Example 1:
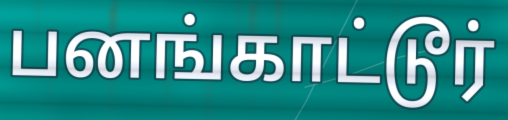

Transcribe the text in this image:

பனங்காட்டூர்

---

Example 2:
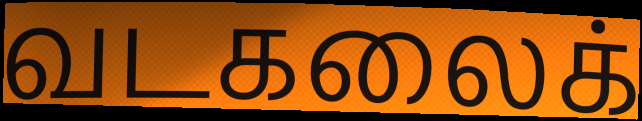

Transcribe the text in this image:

வடகலைக்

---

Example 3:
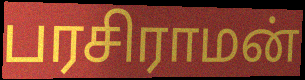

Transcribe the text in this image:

பரசிராமன்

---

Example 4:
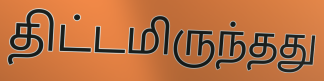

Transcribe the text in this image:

திட்டமிருந்தது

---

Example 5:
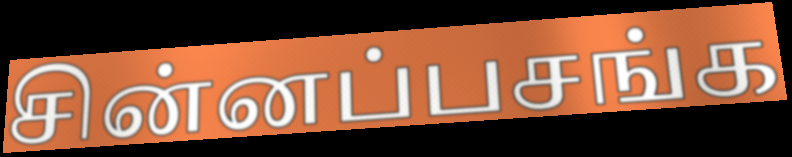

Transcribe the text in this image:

சின்னப்பசங்க